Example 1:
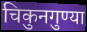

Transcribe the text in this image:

चिकुनगुण्या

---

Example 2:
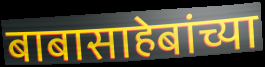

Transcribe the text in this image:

बाबासाहेबांच्‍या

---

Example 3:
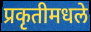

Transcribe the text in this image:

प्रकृतीमधले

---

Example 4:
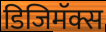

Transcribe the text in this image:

डिजिमॅक्स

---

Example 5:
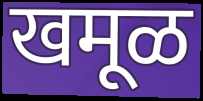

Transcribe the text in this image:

खमूळ